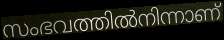
സംഭവത്തിൽനിന്നാണ്